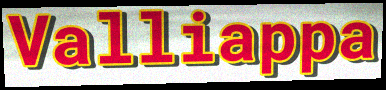
Valliappa